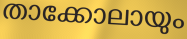
താക്കോലായും